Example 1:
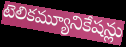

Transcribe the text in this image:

టెలికమ్యూనికేషన్లు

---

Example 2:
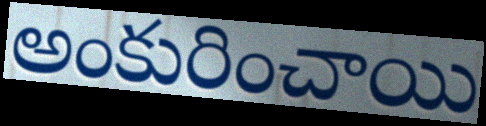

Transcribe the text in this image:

అంకురించాయి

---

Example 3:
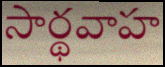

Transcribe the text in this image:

సార్థవాహ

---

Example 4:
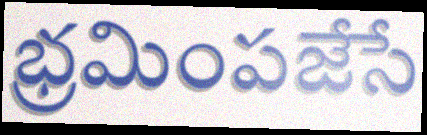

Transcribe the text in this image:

భ్రమింపజేసే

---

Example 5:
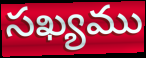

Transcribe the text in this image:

సఖ్యము